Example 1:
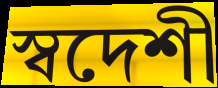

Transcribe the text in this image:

স্বদেশী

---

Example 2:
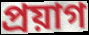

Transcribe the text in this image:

প্ৰয়াগ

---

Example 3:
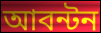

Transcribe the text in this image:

আবন্টন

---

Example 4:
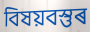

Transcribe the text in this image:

বিষয়বস্তুৰ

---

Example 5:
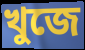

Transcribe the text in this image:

খুজে